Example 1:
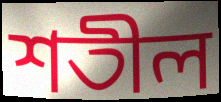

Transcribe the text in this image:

শতীল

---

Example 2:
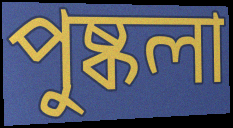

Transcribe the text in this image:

পুষ্কলা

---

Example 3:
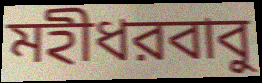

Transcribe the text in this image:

মহীধরবাবু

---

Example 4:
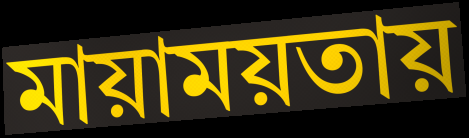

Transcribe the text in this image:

মায়াময়তায়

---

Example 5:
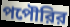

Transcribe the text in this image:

পপৌরির